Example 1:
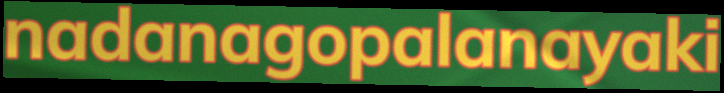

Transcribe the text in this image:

nadanagopalanayaki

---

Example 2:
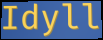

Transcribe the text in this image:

Idyll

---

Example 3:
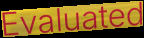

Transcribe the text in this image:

Evaluated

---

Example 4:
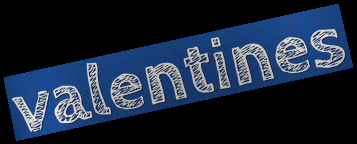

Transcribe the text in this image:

valentines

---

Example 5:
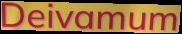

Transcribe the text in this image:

Deivamum